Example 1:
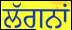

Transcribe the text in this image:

ਲੱਗਨਾਂ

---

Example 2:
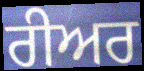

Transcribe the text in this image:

ਰੀਅਰ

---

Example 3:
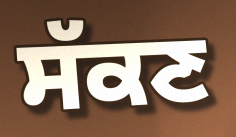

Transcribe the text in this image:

ਸੱਕਣ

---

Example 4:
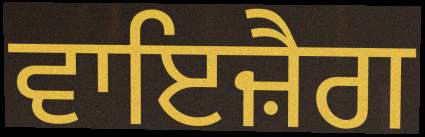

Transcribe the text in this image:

ਵਾਇਜ਼ੈਗ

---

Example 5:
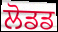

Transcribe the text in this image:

ਲੋਡਡ